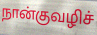
நான்குவழிச்